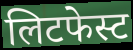
लिटफेस्ट